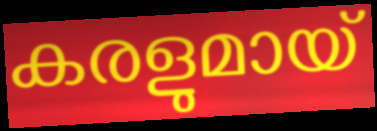
കരളുമായ്